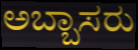
ಅಬ್ಬಾಸರು